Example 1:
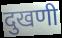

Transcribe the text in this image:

दुखणी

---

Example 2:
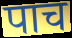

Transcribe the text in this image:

पाच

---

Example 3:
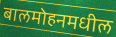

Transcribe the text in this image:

बालमोहनमधील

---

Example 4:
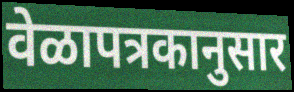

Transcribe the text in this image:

वेळापत्रकानुसार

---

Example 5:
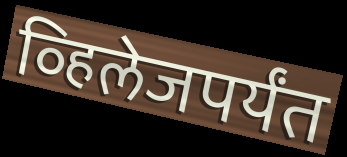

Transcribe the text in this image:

व्हिलेजपर्यंत